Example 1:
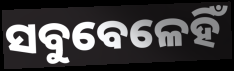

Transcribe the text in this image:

ସବୁବେଳେହିଁ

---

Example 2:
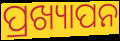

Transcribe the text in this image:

ପ୍ରଖ୍ୟାପନ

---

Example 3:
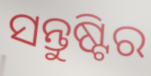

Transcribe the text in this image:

ସନ୍ତୁଷ୍ଟିର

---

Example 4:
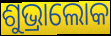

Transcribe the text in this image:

ଶୁଭ୍ରାଲୋକ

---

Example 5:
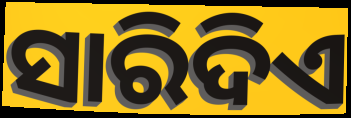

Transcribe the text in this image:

ସାରିଦିଏ